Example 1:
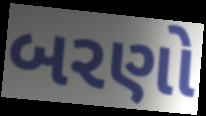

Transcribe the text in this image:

બરણો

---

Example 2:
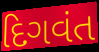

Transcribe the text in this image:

દિગવંત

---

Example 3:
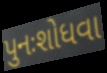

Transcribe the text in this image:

પુનઃશોધવા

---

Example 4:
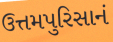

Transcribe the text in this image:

ઉત્તમપુરિસાનં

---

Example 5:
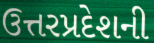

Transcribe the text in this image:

ઉત્તરપ્રદેશની